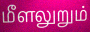
மீளலுறும்